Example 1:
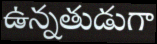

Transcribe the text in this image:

ఉన్నతుడుగా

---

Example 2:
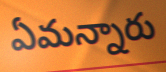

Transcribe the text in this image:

ఏమన్నారు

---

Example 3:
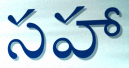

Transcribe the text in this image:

సహా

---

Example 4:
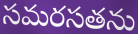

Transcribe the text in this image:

సమరసతను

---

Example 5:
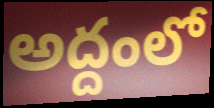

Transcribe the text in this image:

అద్దంలో